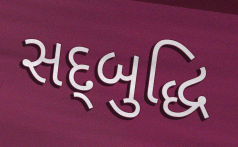
સદ્‌બુદ્ધિ